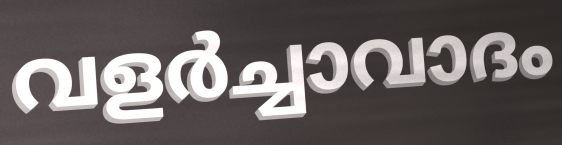
വളർച്ചാവാദം